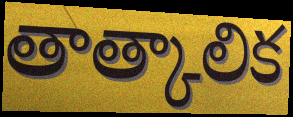
తాత్కాలిక